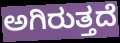
ಅಗಿರುತ್ತದೆ